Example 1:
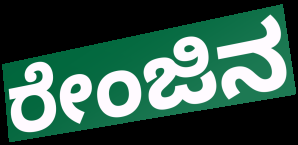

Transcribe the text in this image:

ರೇಂಜಿನ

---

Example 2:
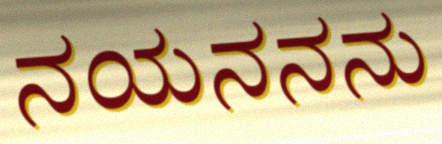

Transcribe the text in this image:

ನಯನನನು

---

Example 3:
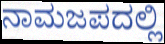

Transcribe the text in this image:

ನಾಮಜಪದಲ್ಲಿ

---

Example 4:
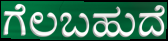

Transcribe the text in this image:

ಗೆಲಬಹುದೆ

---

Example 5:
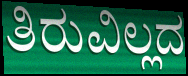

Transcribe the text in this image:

ತಿರುವಿಲ್ಲದ